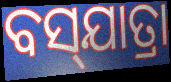
ବସ୍‌ଯାତ୍ରା